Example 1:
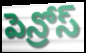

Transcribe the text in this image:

పెన్రోస్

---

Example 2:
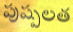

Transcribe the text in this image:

పుష్పలత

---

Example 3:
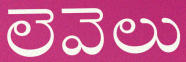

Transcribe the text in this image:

లెవెలు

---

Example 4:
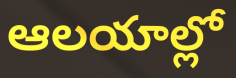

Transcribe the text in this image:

ఆలయాల్లో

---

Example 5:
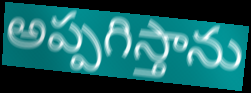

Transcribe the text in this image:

అప్పగిస్తాను